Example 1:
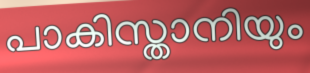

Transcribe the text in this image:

പാകിസ്താനിയും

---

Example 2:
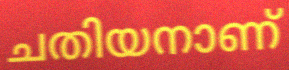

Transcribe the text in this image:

ചതിയനാണ്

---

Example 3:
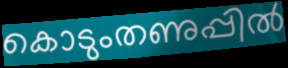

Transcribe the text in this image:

കൊടുംതണുപ്പിൽ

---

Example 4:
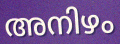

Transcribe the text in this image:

അനിഴം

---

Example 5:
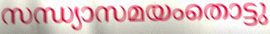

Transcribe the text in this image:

സന്ധ്യാസമയംതൊട്ടു